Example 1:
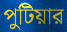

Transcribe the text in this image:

পুটিয়ার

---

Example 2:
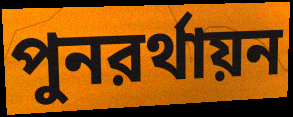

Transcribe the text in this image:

পুনরর্থায়ন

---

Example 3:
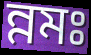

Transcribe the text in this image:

ন্নমঃ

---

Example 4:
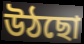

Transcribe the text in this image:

উঠছো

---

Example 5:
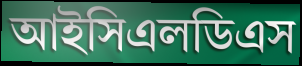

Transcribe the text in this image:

আইসিএলডিএস